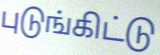
புடுங்கிட்டு